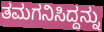
ತಮಗನಿಸಿದ್ದನ್ನು